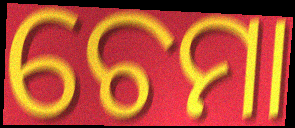
ଚେମା